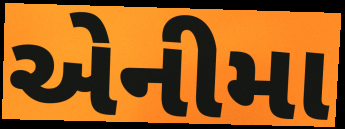
એનીમા